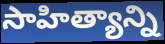
సాహిత్యాన్ని